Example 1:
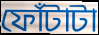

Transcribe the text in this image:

ফোঁটাটা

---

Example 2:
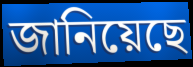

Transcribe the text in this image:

জানিয়েছে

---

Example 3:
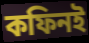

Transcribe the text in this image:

কফিনই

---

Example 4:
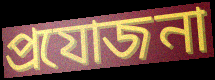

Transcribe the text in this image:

প্রযোজনা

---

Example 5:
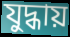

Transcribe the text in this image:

যুদ্ধায়